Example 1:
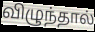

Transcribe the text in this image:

விழுந்தால்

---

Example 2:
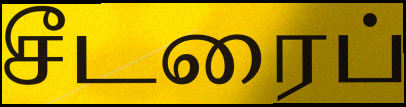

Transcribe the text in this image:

சீடரைப்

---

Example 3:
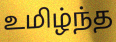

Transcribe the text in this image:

உமிழ்ந்த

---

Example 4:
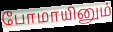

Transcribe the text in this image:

போமாயினும்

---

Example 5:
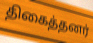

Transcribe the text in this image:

திகைத்தனர்